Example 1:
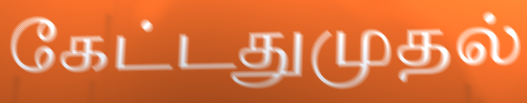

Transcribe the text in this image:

கேட்டதுமுதல்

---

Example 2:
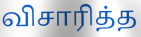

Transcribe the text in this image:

விசாரித்த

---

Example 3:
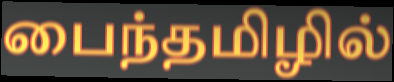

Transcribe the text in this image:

பைந்தமிழில்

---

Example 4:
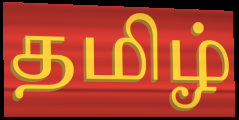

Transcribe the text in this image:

தமிழ்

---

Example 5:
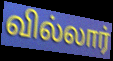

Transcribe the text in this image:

வில்லார்